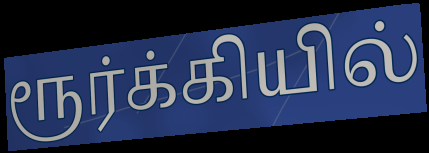
ரூர்க்கியில்